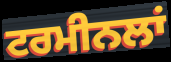
ਟਰਮੀਨਲਾਂ